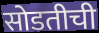
सोडतीची